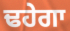
ਢਹੇਗਾ